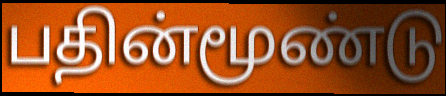
பதின்மூண்டு